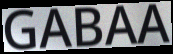
GABAA